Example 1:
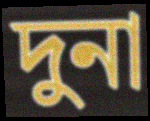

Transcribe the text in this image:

দুনা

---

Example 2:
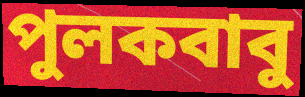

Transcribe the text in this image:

পুলকবাবু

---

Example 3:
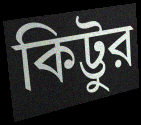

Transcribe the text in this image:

কিট্টুর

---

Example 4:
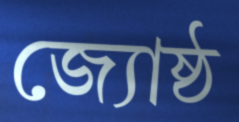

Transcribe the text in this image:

জ্যোষ্ঠ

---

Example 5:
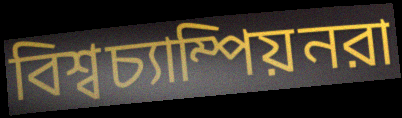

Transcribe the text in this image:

বিশ্বচ্যাম্পিয়নরা